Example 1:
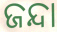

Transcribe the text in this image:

ଜନ୍ଦା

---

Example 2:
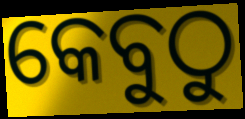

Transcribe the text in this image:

କେବୁଠୁ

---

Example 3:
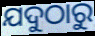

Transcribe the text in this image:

ଯଦୁଠାରୁ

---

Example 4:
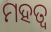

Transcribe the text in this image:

ମହତ୍ବ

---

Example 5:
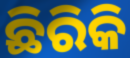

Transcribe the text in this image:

ଛିରିକି